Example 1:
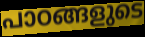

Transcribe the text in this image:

പാഠങ്ങളുടെ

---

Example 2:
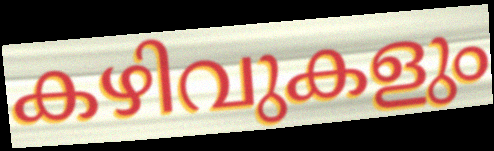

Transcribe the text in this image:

കഴിവുകളും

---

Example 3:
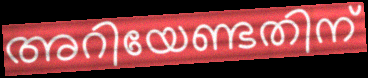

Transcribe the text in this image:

അറിയേണ്ടതിന്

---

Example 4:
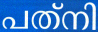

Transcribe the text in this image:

പത്‌നി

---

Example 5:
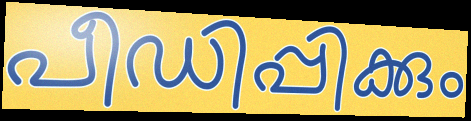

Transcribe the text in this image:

പീഡിപ്പിക്കും